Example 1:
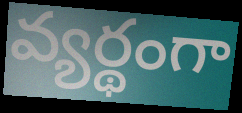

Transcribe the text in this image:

వ్యర్థంగా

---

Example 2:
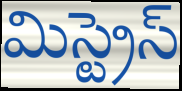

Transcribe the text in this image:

మిస్ట్రెస్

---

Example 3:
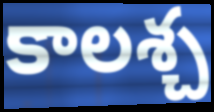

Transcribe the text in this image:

కాలశ్చ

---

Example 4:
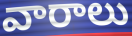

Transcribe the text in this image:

వారాలు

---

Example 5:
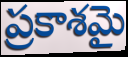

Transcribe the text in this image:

ప్రకాశమై